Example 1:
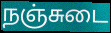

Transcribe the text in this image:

நஞ்சுடை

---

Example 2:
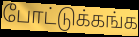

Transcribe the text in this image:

போட்டுக்கங்க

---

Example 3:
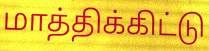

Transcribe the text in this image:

மாத்திக்கிட்டு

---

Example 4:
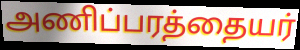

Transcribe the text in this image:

அணிப்பரத்தையர்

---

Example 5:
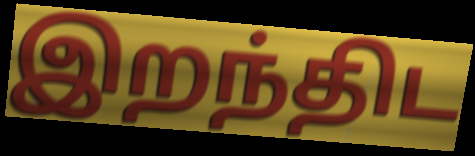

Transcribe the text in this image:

இறந்திட